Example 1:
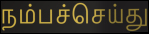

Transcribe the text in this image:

நம்பச்செய்து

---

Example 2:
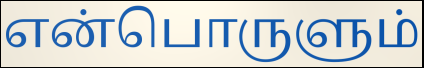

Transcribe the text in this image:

என்பொருளும்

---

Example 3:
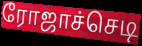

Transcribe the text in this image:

ரோஜாச்செடி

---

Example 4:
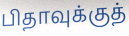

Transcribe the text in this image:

பிதாவுக்குத்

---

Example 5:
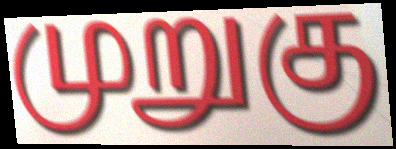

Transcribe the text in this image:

முறுகு